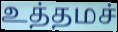
உத்தமச்